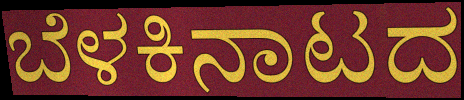
ಬೆಳಕಿನಾಟದ